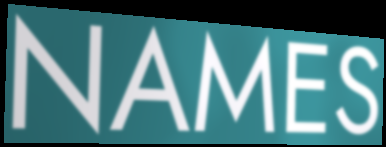
NAMES